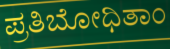
ಪ್ರತಿಬೋಧಿತಾಂ